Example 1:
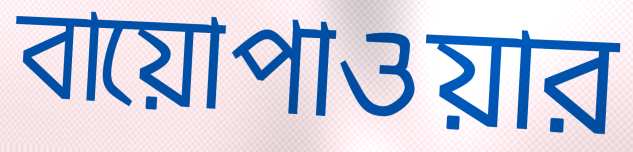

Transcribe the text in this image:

বায়োপাওয়ার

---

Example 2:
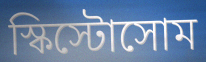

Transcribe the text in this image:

স্কিস্টোসোম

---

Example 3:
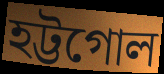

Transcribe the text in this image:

হট্টগোল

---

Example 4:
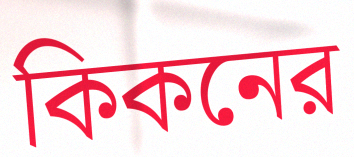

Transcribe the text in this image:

কিকনের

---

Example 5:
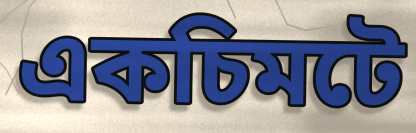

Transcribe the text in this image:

একচিমটে